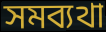
সমব্যথা